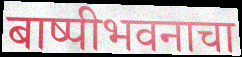
बाष्पीभवनाचा